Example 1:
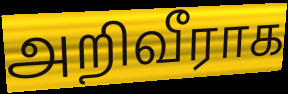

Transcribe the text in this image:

அறிவீராக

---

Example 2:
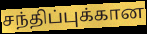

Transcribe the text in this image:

சந்திப்புக்கான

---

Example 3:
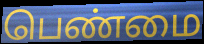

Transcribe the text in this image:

பெண்மை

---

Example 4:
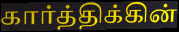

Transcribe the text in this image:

கார்த்திக்கின்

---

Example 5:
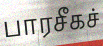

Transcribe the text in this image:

பாரசீகச்